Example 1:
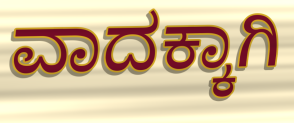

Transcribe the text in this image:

ವಾದಕ್ಕಾಗಿ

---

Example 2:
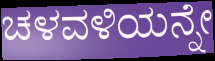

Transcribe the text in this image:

ಚಳವಳಿಯನ್ನೇ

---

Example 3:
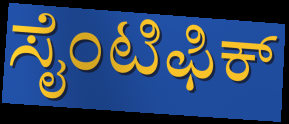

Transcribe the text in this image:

ಸೈಂಟಿಫಿಕ್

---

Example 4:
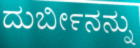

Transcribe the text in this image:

ದುರ್ಬೀನನ್ನು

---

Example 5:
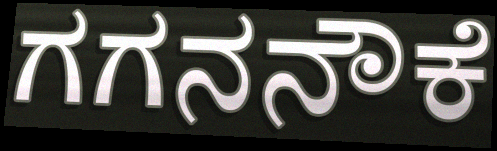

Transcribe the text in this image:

ಗಗನನೌಕೆ